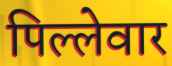
पिल्लेवार